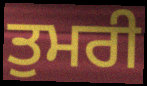
ਤੁਮਰੀ